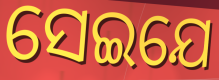
ସେଇଯେ